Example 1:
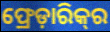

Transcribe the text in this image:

ଫ୍ରେଡ଼ାରିକ୍‍ର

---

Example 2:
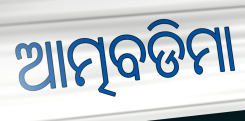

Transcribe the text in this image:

ଆତ୍ମବଡିମା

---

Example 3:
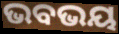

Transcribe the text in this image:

ଭବଭୟ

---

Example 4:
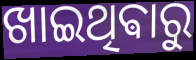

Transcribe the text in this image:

ଖାଇଥିଵାରୁ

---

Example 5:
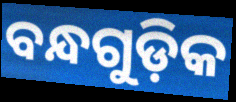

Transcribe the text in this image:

ବନ୍ଧଗୁଡ଼ିକ